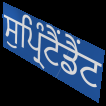
ਸੁਪ੍ਰਿੰਟੈਂਡੈਂਟ